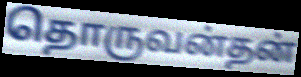
தொருவன்தன்